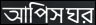
আপিসঘর